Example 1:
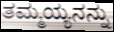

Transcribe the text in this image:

ತಮ್ಮಯ್ಯನನ್ನು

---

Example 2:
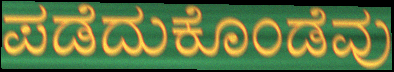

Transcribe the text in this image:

ಪಡೆದುಕೊಂಡೆವು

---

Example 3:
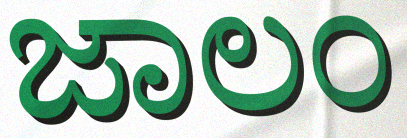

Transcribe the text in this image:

ಜಾಲಂ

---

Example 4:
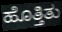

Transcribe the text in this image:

ಹೊತ್ತಿತು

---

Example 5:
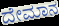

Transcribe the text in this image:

ದೇಮಾನ